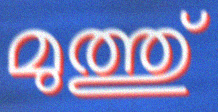
മുത്തു്